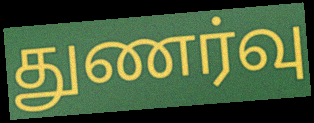
துணர்வு